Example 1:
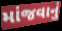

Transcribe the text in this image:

માંજવાનું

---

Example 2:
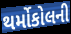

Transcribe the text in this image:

થર્મોકોલની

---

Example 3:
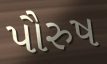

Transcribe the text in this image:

પૌરુષ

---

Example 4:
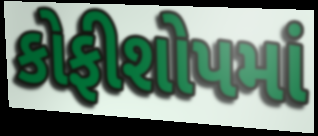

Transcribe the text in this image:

કોફીશોપમાં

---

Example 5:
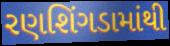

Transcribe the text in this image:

રણશિંગડામાંથી